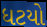
ધટયો